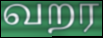
வறர